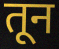
तून